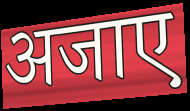
अजाए